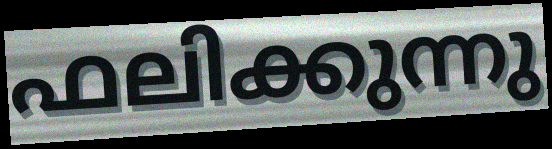
ഫലിക്കുന്നു